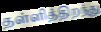
தள்ளித்திறந்து